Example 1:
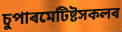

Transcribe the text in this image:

চুপাৰমেটিষ্টসকলৰ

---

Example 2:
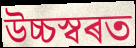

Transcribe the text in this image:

উচ্চস্বৰত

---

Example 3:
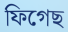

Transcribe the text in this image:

ফিগেছ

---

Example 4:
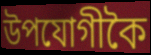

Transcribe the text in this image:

উপযোগীকৈ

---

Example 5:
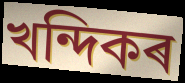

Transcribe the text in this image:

খন্দিকৰ